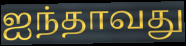
ஐந்தாவது